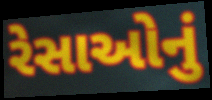
રેસાઓનું